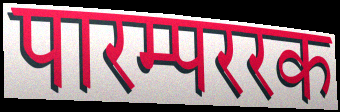
पारम्पररक